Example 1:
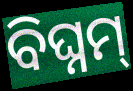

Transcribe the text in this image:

ବିଘ୍ନମ୍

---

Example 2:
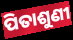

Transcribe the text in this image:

ପିତାଶୁଣୀ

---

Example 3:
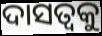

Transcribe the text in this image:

ଦାସତ୍ୱକୁ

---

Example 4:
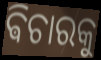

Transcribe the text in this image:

ଵିଚାରକୁ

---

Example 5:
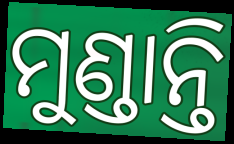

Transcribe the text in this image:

ମୁଣ୍ଡାନ୍ତି